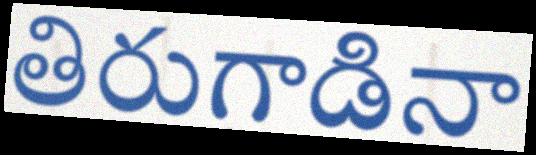
తిరుగాడినా